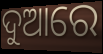
ଦୁଆରେ